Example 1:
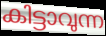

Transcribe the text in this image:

കിട്ടാവുന്ന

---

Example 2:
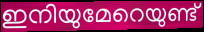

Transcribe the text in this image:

ഇനിയുമേറെയുണ്ട്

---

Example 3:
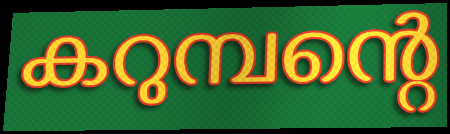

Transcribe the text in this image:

കറുമ്പന്റെ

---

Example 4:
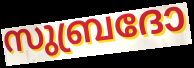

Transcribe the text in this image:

സുബ്രദോ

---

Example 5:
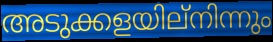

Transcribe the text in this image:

അടുക്കളയില്നിന്നും